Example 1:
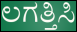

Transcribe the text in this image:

ಲಗತ್ತಿಸಿ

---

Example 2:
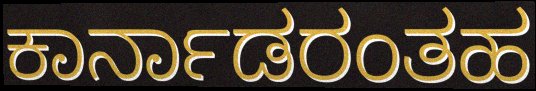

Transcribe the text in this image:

ಕಾರ್ನಾಡರಂತಹ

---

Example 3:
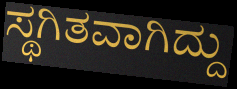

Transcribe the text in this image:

ಸ್ಥಗಿತವಾಗಿದ್ದು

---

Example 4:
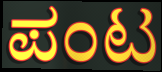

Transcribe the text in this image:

ಪಂಟ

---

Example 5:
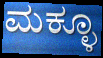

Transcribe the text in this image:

ಮಕ್ಳೂ